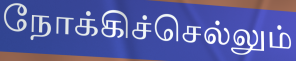
நோக்கிச்செல்லும்